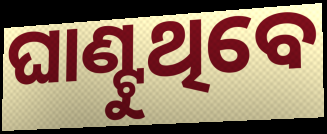
ଘାଣ୍ଟୁଥିବେ